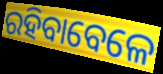
ରହିବାବେଳେ